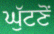
ਘੁੱਟਣੋਂ